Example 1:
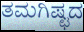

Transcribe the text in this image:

ತಮಗಿಷ್ಟದ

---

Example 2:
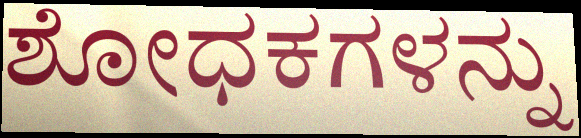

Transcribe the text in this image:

ಶೋಧಕಗಳನ್ನು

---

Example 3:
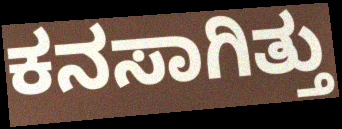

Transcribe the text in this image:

ಕನಸಾಗಿತ್ತು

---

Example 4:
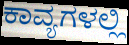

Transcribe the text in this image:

ಕಾವ್ಯಗಳಲ್ಲಿ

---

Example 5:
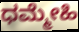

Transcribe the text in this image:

ಧಮ್ಮೇಹಿ